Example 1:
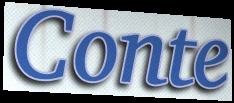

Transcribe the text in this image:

Conte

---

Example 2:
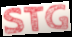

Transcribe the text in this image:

STG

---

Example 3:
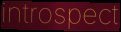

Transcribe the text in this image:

introspect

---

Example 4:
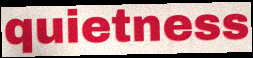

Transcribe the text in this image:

quietness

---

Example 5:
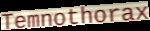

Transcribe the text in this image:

Temnothorax